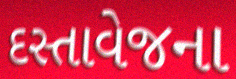
દસ્તાવેજના